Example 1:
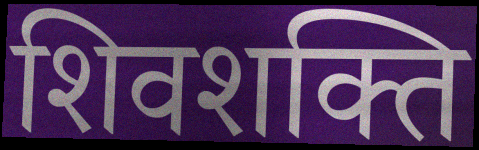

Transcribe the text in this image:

शिवशक्ति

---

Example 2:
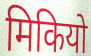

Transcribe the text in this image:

मिकियो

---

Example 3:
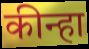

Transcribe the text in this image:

कीन्हा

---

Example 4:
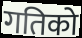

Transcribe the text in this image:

गतिको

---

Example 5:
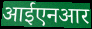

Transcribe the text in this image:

आईएनआर